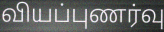
வியப்புணர்வு